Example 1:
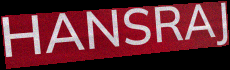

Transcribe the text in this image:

HANSRAJ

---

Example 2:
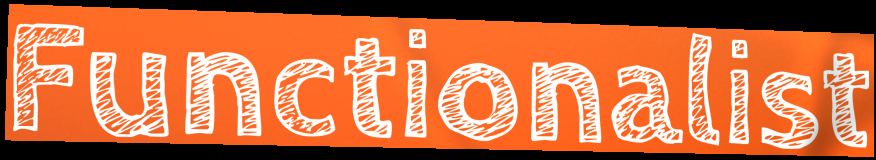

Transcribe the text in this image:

Functionalist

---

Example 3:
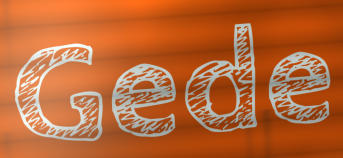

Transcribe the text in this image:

Gede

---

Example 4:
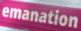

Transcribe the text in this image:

emanation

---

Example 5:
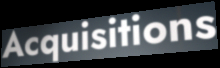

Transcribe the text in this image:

Acquisitions